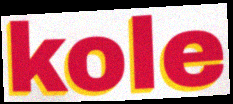
kole